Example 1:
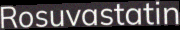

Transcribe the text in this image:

Rosuvastatin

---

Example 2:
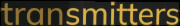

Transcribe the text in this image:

transmitters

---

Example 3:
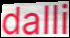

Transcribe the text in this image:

dalli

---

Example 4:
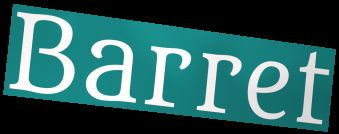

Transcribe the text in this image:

Barret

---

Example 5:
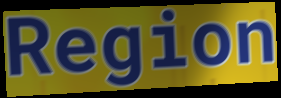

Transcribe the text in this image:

Region